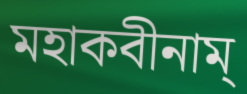
মহাকবীনাম্